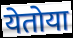
येतोया